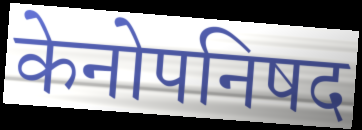
केनोपनिषद